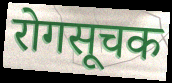
रोगसूचक